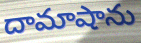
దామాషాను